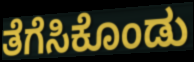
ತೆಗೆಸಿಕೊಂಡು